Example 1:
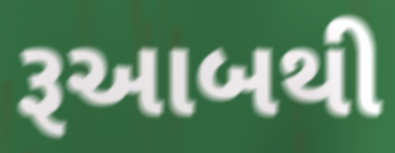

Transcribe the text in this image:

રૂઆબથી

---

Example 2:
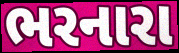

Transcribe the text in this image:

ભરનારા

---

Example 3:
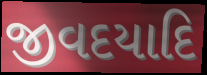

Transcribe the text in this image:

જીવદયાદિ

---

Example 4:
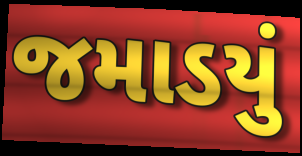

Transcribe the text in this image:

જમાડયું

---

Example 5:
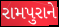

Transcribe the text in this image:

રામપુરાને